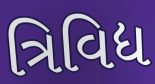
ત્રિવિદ્ય